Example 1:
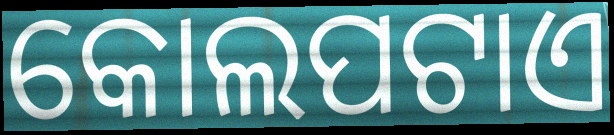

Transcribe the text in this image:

କୋଲପଟାଏ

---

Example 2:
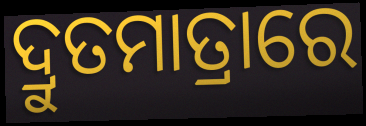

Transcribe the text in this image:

ଦ୍ରୁତମାତ୍ରାରେ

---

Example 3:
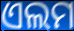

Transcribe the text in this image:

ଏଲମ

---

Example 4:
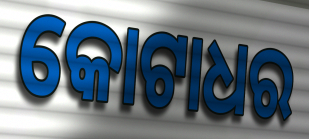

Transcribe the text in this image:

କୋଟାଧର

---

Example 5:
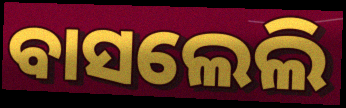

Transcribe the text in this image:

ବାସଲେଲି